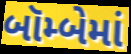
બૉમ્બેમાં